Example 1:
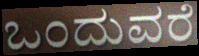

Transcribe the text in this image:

ಒಂದುವರೆ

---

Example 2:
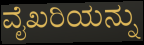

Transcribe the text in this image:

ವೈಖರಿಯನ್ನು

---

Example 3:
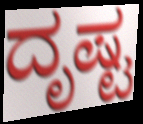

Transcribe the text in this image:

ದೃಷ್ಟ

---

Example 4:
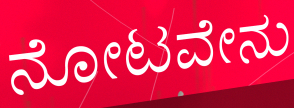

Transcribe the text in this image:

ನೋಟವೇನು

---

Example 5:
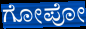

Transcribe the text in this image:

ಗೋಪೋ